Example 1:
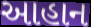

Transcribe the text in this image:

આહાન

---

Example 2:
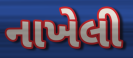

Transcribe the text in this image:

નાખેલી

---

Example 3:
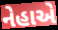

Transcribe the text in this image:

નેહાએ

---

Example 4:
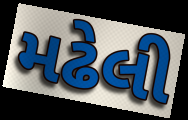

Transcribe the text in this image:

મઢેલી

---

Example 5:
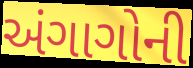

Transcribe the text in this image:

અંગાગોની